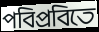
পবিপ্রবিতে